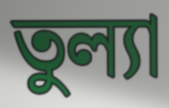
তুল্যা